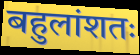
बहुलांशतः